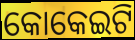
କୋକେଇଟି